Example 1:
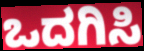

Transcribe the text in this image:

ಒದಗಿಸಿ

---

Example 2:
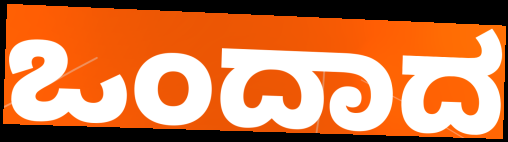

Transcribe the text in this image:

ಒಂದಾದ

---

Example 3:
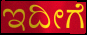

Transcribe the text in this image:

ಇದೀಗೆ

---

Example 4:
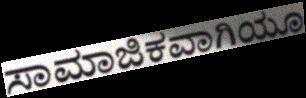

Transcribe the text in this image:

ಸಾಮಾಜಿಕವಾಗಿಯೂ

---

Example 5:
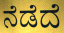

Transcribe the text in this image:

ನೆಡೆದೆ